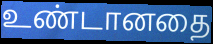
உண்டானதை